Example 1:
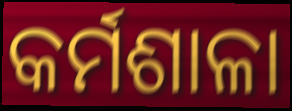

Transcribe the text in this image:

କର୍ମଶାଳା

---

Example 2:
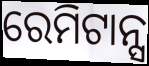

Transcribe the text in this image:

ରେମିଟାନ୍ସ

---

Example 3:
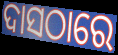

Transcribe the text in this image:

ଦାସଠାରେ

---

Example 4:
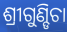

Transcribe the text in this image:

ଶ୍ରୀଗୁଣ୍ଡିଚା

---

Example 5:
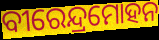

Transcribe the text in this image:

ବୀରେନ୍ଦ୍ରମୋହନ